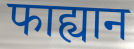
फाह्यान